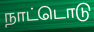
நாட்டொடு